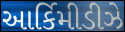
આર્કિમીડીઝે